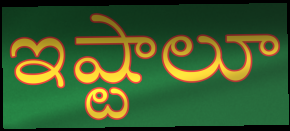
ఇష్టాలూ